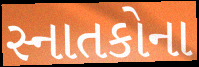
સ્નાતકોના